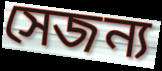
সেজন্য